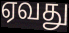
ஏவது